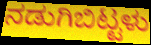
ನಡುಗಿಬಿಟ್ಟಳು